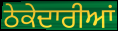
ਠੇਕੇਦਾਰੀਆਂ